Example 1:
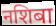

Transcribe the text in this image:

नशिबा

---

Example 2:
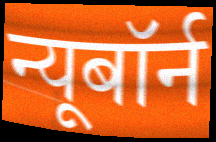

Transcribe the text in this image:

न्यूबॉर्न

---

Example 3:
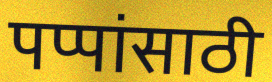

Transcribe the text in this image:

पप्पांसाठी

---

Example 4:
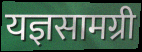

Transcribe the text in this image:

यज्ञसामग्री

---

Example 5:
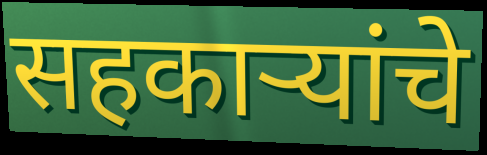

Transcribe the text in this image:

सहकार्‍यांचे